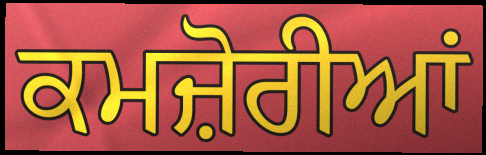
ਕਮਜ਼ੋਰੀਆਂ